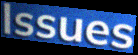
Issues